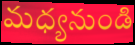
మధ్యనుండి